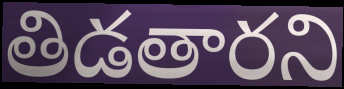
తిడతారని